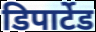
डिपार्टेड